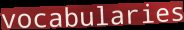
vocabularies